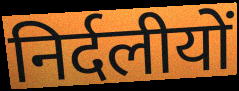
निर्दलीयों